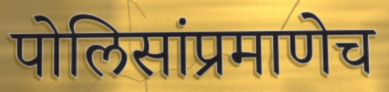
पोलिसांप्रमाणेच